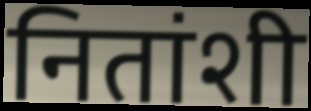
नितांशी